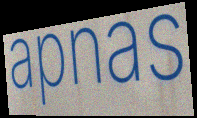
apnas